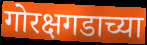
गोरक्षगडाच्या